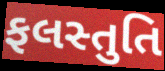
ફલસ્તુતિ